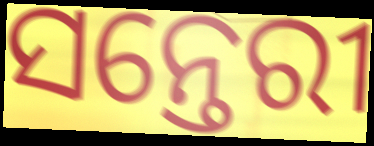
ସନ୍ତେରୀ